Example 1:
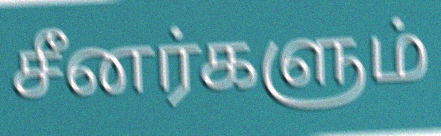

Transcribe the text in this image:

சீனர்களும்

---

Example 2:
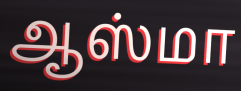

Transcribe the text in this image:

ஆஸ்மா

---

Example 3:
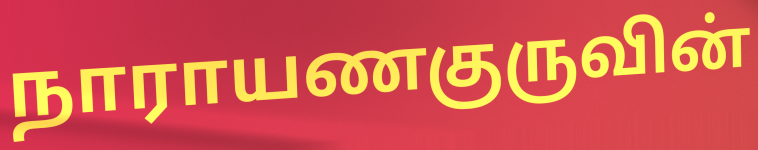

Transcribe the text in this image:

நாராயணகுருவின்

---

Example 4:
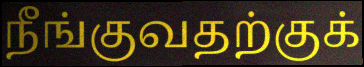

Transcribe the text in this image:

நீங்குவதற்குக்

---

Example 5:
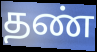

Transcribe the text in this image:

தண்